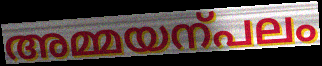
അമ്മയന്പലം